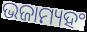
ଭଜାମ୍ୟହଂ